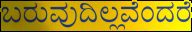
ಬರುವುದಿಲ್ಲವೆಂದರೆ